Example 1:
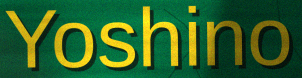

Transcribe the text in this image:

Yoshino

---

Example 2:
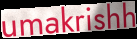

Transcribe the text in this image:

umakrishh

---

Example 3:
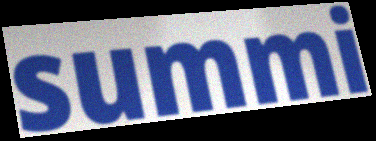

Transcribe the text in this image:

summi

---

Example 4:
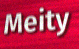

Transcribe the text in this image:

Meity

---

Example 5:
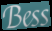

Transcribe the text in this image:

Bess